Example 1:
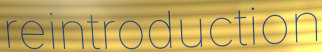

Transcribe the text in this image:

reintroduction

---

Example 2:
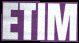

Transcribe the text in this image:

ETIM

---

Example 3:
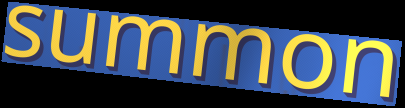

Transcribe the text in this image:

summon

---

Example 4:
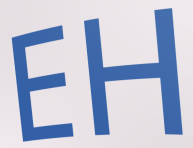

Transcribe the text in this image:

EH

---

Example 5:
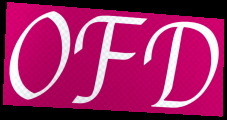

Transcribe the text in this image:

OFD